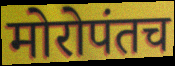
मोरोपंतच